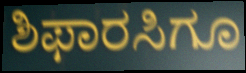
ಶಿಫಾರಸಿಗೂ